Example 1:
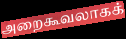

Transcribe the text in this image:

அறைகூவலாகக்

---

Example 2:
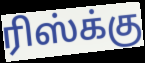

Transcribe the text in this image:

ரிஸ்க்கு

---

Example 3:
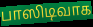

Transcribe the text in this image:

பாஸிடிவாக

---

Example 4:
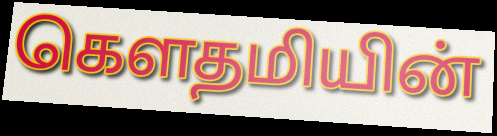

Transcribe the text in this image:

கெளதமியின்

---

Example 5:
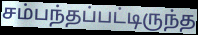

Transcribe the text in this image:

சம்பந்தப்பட்டிருந்த